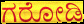
ಗರೋಡಿ